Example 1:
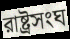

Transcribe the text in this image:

রাষ্ট্রসংঘ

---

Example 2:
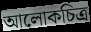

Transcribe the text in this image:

আলোকচিত্র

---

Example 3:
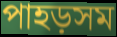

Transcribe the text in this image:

পাহড়সম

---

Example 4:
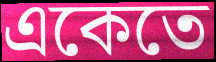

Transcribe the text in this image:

একেতে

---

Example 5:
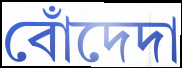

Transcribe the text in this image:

বোঁদেদা